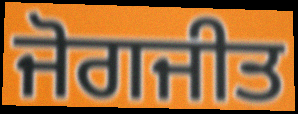
ਜੋਗਜੀਤ